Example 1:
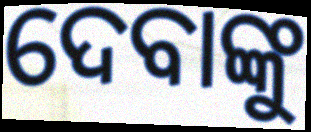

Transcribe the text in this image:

ଦେବାଙ୍କୁ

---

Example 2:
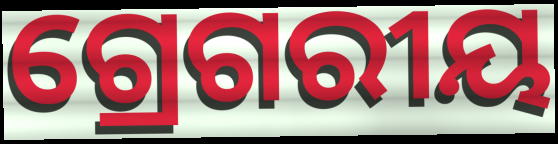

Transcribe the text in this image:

ଗ୍ରେଗରୀୟ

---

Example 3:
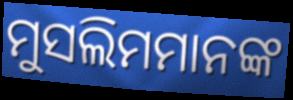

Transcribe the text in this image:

ମୁସଲିମମାନଙ୍କ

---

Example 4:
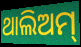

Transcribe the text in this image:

ଥାଲିଅମ୍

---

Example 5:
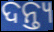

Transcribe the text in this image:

ଦନ୍ତ୍ଯ